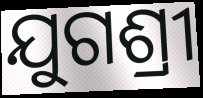
ଯୁଗଶ୍ରୀ